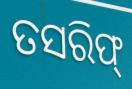
ତସରିଫ୍